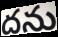
దను